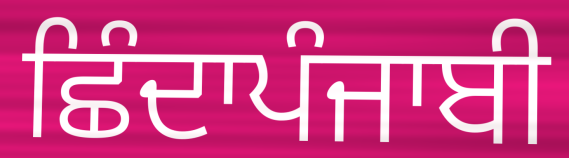
ਛਿੰਦਾਪੰਜਾਬੀ